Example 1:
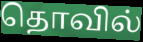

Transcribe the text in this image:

தொவில்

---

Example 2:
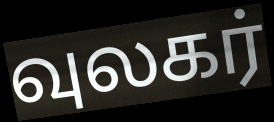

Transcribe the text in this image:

வுலகர்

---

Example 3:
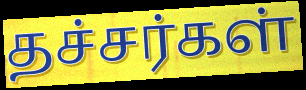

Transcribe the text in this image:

தச்சர்கள்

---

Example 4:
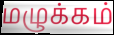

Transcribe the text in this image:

மழுக்கம்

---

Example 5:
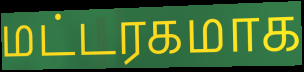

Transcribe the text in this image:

மட்டரகமாக